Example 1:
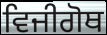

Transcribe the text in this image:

ਵਿਜੀਗੋਥ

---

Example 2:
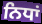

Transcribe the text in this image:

ਨਿਧਾਂ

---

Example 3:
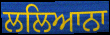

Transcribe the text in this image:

ਲਲਿਆਨਾ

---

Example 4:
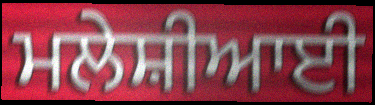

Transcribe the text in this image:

ਮਲੇਸ਼ੀਆਈ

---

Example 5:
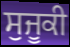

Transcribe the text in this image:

ਸੁਜੂਕੀ